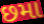
છમા